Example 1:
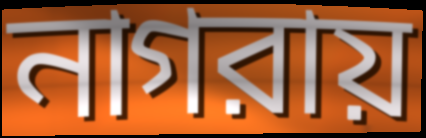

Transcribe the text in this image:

নাগরায়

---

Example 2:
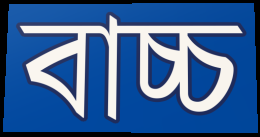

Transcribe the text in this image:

বাচ্চ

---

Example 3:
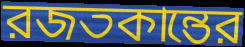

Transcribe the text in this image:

রজতকান্তের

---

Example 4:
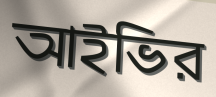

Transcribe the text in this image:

আইভির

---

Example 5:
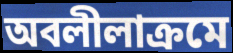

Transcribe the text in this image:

অবলীলাক্রমে